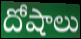
దోషాలు